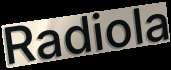
Radiola